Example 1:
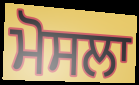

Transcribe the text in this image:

ਮੋਸਲਾ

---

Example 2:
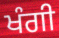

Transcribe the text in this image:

ਖੰਗੀ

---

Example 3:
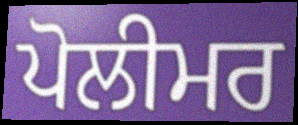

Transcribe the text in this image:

ਪੋਲੀਮਰ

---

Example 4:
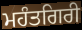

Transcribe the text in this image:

ਮਹੰਤਗਿਰੀ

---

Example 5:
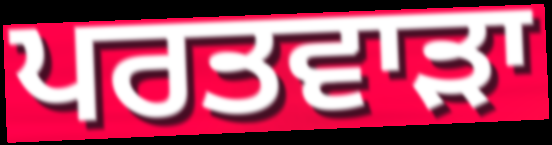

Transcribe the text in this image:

ਪਰਤਵਾੜਾ